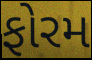
ફોરમ